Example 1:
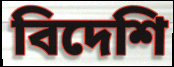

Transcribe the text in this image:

বিদেশি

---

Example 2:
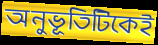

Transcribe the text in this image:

অনুভূতিটিকেই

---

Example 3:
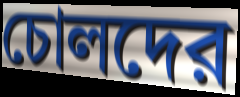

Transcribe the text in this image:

চোলদের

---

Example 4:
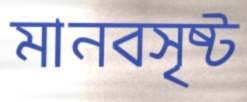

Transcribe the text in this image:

মানবসৃষ্ট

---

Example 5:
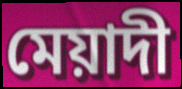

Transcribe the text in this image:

মেয়াদী